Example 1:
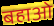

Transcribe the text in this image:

बहाओ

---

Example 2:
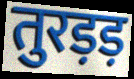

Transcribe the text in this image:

तुरड़ड़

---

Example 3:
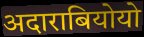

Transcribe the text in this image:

अदाराबियोयो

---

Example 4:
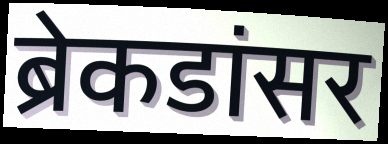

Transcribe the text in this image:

ब्रेकडांसर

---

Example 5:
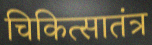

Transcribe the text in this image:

चिकित्सातंत्र